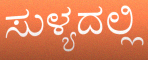
ಸುಳ್ಯದಲ್ಲಿ